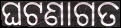
ଘଟଣାଗତ